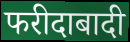
फरीदाबादी